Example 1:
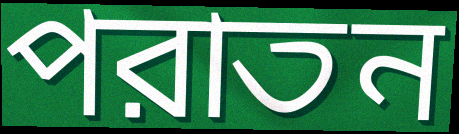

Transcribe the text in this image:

পরাতন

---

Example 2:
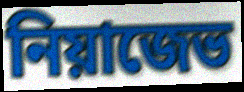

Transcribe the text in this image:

নিয়াজেভ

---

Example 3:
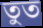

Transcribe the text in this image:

তুত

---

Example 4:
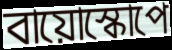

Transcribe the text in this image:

বায়োস্কোপে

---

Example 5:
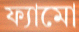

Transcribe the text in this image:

ফ্যামো